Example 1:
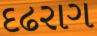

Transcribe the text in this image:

દઢરાગ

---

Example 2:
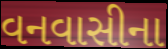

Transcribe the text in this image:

વનવાસીના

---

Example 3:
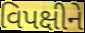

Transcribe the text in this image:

વિપક્ષીને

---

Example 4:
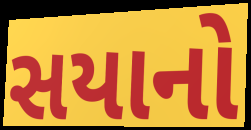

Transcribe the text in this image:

સયાનો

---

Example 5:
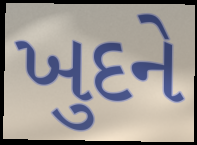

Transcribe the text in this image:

ખુદને